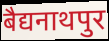
बैद्यनाथपुर